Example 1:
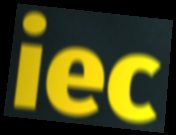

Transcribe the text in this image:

iec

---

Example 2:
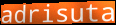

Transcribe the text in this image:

adrisuta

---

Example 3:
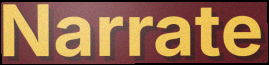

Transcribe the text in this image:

Narrate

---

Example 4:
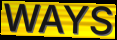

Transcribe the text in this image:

WAYS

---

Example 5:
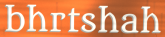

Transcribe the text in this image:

bhrtshah